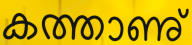
കത്താണു്